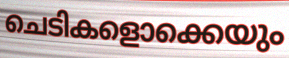
ചെടികളൊക്കെയും